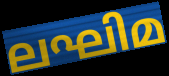
ലഘിമ